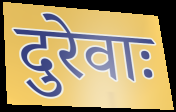
दुरेवाः